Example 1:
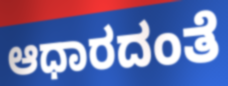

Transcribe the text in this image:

ಆಧಾರದಂತೆ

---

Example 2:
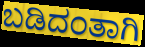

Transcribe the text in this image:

ಬಡಿದಂತಾಗಿ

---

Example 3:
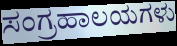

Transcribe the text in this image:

ಸಂಗ್ರಹಾಲಯಗಳು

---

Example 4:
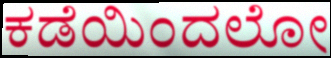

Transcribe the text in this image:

ಕಡೆಯಿಂದಲೋ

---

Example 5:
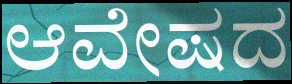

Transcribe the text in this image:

ಆವೇಷದ